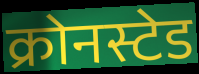
क्रोनस्टेड